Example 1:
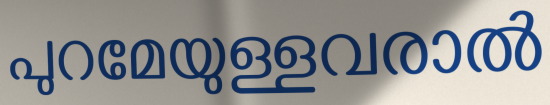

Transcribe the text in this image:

പുറമേയുള്ളവരാൽ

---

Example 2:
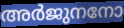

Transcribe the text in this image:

അർജുനനോ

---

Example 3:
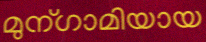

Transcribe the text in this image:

മുന്ഗാമിയായ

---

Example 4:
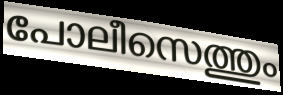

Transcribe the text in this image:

പോലീസെത്തും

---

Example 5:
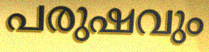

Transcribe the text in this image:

പരുഷവും